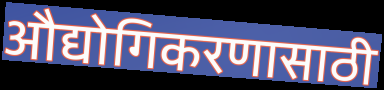
औद्योगिकरणासाठी